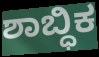
ಶಾಬ್ಧಿಕ